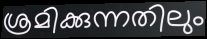
ശ്രമിക്കുന്നതിലും